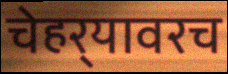
चेहर्‍यावरच